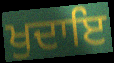
ਖੁਦਾਇ